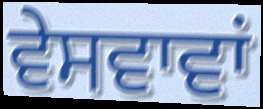
ਵੇਸਵਾਵਾਂ